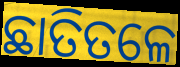
ଛାତିତଳେ